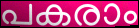
പകരാം